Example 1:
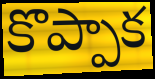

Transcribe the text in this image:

కొప్పాక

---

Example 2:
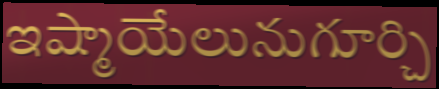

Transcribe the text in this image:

ఇష్మాయేలునుగూర్చి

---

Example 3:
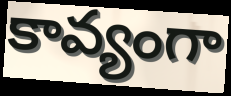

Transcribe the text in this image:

కావ్యంగా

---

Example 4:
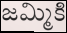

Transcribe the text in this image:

జమ్మికి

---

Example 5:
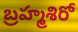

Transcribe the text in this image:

బ్రహ్మశిరో